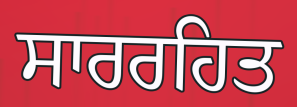
ਸਾਰਰਹਿਤ